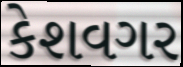
કેશવગર